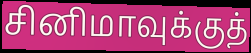
சினிமாவுக்குத்